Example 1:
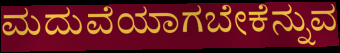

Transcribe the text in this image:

ಮದುವೆಯಾಗಬೇಕೆನ್ನುವ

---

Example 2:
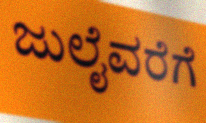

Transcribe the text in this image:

ಜುಲೈವರೆಗೆ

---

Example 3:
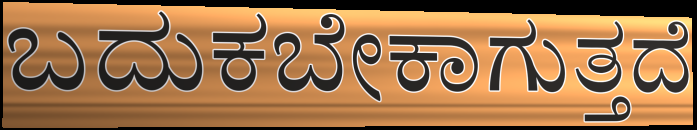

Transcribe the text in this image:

ಬದುಕಬೇಕಾಗುತ್ತದೆ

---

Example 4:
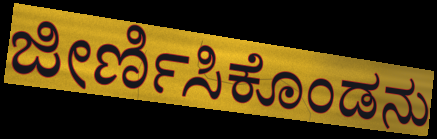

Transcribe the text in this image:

ಜೀರ್ಣಿಸಿಕೊಂಡನು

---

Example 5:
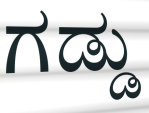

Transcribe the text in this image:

ಗಡ್ಡು